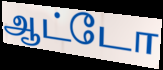
ஆட்டோ